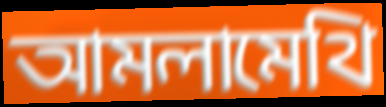
আমলামেথি